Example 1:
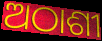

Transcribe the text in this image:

ଅଠାଶୀ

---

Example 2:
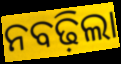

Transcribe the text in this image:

ନବଢ଼ିଲା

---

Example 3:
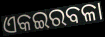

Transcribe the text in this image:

ଏକଇରବଳା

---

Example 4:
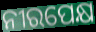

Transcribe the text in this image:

ନୀରପେକ୍ଷ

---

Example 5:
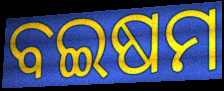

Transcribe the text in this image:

ବଇଷମ